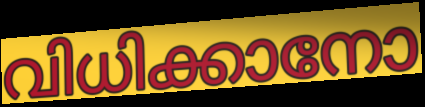
വിധിക്കാനോ